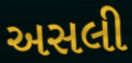
અસલી